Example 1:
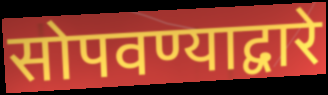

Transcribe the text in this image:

सोपवण्याद्वारे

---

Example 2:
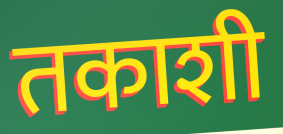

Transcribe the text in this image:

तकाशी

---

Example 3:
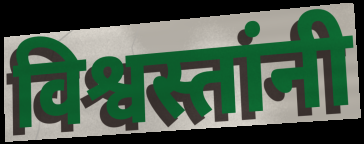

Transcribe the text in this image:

विश्वस्तांनी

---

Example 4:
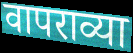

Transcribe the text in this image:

वापराव्या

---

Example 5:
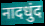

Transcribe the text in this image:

नादधुंद